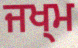
ਜਖ੍ਮ